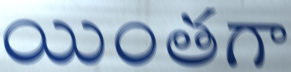
యింతగా